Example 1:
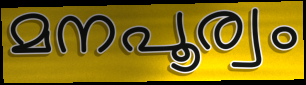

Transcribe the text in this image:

മനപൂര്വം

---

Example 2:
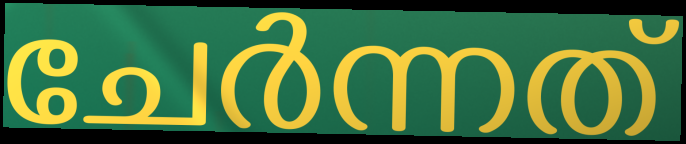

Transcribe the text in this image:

ചേർന്നത്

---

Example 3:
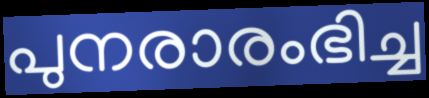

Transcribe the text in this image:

പുനരാരംഭിച്ച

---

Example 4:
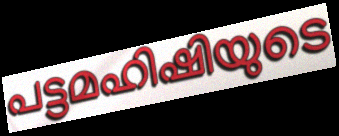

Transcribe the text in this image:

പട്ടമഹിഷിയുടെ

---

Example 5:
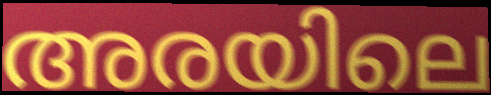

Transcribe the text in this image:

അരയിലെ